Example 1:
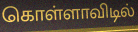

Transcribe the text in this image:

கொள்ளாவிடில்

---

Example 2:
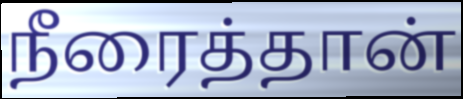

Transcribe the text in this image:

நீரைத்தான்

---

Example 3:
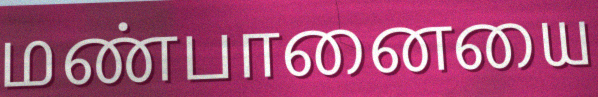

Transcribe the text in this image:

மண்பானையை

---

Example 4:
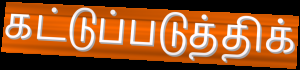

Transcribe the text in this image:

கட்டுப்படுத்திக்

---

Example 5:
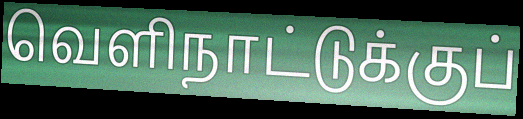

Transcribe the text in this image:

வெளிநாட்டுக்குப்